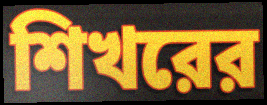
শিখরের